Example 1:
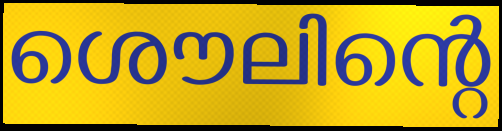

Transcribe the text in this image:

ശൌലിന്റെ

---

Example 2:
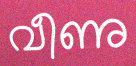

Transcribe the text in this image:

വീണു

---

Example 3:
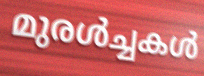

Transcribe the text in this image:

മുരൾച്ചകൾ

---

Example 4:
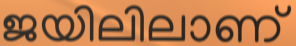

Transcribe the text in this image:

ജയിലിലാണ്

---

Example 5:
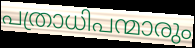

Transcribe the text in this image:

പത്രാധിപന്മാരും